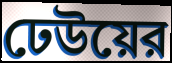
ঢেউয়ের